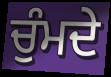
ਚੁੰਮਦੇ